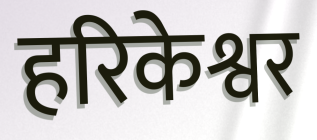
हरिकेश्वर